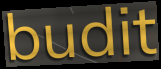
budit